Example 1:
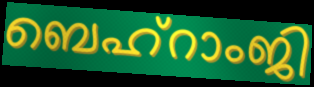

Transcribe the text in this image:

ബെഹ്റാംജി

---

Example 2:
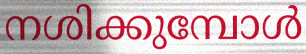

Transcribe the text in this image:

നശിക്കുമ്പോൾ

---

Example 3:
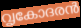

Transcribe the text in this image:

വൃകോദരൻ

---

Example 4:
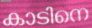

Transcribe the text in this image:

കാടിനെ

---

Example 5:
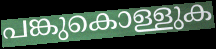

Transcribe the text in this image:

പങ്കുകൊള്ളുക